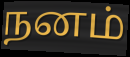
நனம்